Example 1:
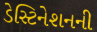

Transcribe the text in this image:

ડેસ્ટિનેશનની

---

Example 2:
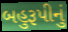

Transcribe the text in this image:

બહુરૂપીનું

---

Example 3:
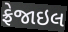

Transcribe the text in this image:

ફ્રેજાઇલ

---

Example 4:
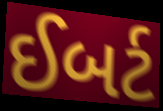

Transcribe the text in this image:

ઈબર્ટ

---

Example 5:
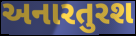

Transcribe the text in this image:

અનારતુરશ